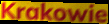
Krakowie